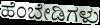
ಹೆಂಬೇಡಿಗಳು